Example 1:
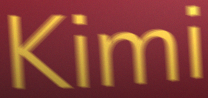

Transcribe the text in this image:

Kimi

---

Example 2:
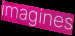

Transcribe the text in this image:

imagines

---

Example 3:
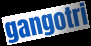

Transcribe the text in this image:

gangotri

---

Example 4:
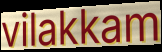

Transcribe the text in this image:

vilakkam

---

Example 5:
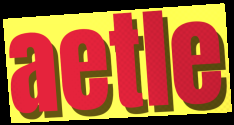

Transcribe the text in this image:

aetle